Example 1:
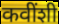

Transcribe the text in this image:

कवींशी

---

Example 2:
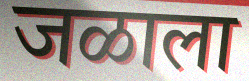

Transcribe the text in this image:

जळाला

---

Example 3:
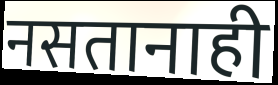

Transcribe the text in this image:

नसतानाही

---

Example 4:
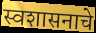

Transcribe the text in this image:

स्वशासनाचे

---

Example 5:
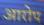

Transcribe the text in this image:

आरोप